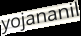
yojananil